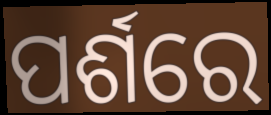
ପର୍ଶରେ